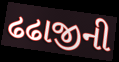
ઢઢાજીની